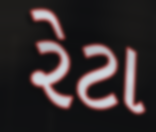
રેટા